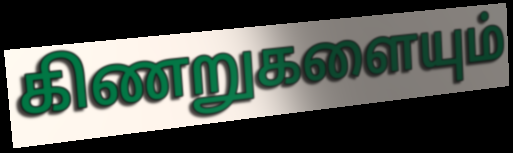
கிணறுகளையும்